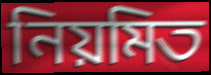
নিয়মিত